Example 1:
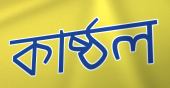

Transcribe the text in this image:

কাষ্ঠল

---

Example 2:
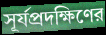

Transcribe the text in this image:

সূর্যপ্রদক্ষিণের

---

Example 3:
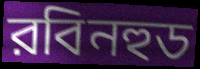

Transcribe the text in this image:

রবিনহুড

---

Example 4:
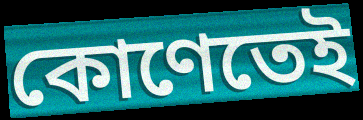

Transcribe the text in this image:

কোণেতেই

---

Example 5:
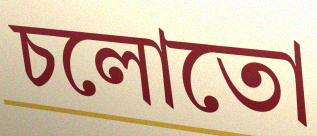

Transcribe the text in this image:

চলোতো